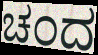
ಚಂದ